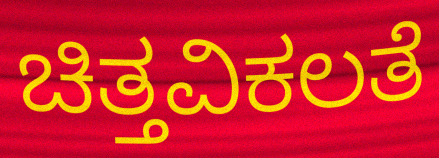
ಚಿತ್ತವಿಕಲತೆ